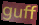
guff